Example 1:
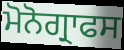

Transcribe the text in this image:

ਮੋਨੋਗ੍ਰਾਫਸ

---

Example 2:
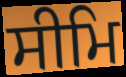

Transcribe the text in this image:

ਸੀਮਿ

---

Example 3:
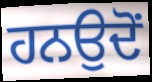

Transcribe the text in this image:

ਹਨਉਦੋਂ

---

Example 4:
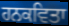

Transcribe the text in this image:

ਹਨਕਵਿਤਾ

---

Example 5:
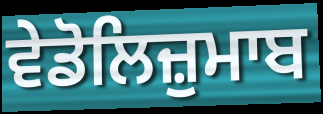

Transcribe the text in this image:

ਵੇਡੋਲਿਜ਼ੁਮਾਬ